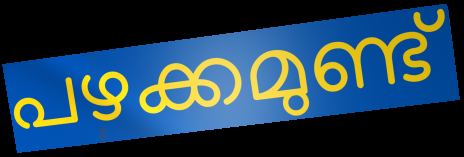
പഴക്കമുണ്ട്